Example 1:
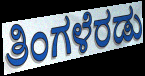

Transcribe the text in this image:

ತಿಂಗಳೆರಡು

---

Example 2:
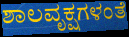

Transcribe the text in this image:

ಶಾಲವೃಕ್ಷಗಳಂತೆ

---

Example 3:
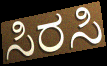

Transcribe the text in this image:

ಸಿರಸಿ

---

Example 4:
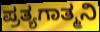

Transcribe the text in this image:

ಪ್ರತ್ಯಗಾತ್ಮನಿ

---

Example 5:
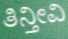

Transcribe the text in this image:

ತಿನ್ತೀವಿ